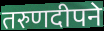
तरुणदीपने